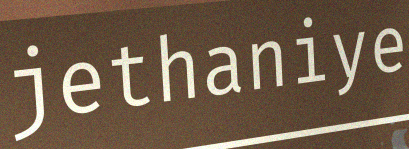
jethaniye